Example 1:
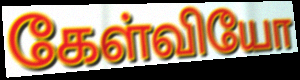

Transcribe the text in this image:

கேள்வியோ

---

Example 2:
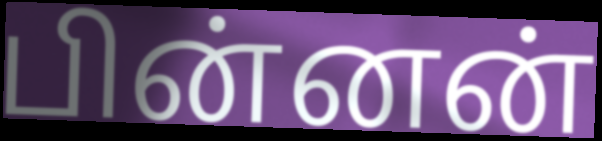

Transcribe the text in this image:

பின்னன்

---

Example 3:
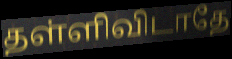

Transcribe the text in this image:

தள்ளிவிடாதே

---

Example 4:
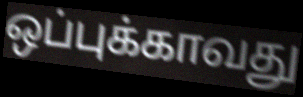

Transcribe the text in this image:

ஒப்புக்காவது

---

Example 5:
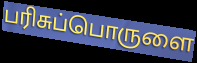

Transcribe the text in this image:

பரிசுப்பொருளை